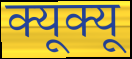
क्यूक्यू